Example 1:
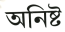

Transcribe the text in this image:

অনিষ্ট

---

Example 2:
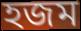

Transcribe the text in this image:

হজম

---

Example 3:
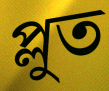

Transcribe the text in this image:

প্লুত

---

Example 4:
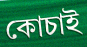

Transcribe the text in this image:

কোচাই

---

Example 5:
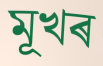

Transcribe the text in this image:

মূখৰ